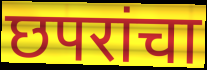
छपरांचा